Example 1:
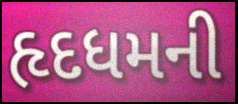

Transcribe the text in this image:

હૃદધમની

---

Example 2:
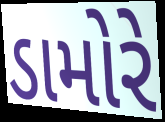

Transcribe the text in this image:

ડામોરે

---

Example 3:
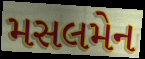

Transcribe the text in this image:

મસલમેન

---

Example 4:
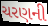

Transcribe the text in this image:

ચરણની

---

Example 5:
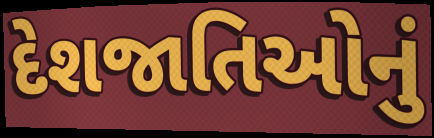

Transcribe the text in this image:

દેશજાતિઓનું